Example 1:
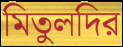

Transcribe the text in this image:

মিতুলদির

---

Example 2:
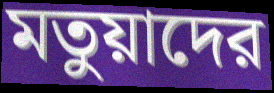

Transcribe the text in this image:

মতুয়াদের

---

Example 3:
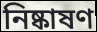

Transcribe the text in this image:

নিষ্কাষণ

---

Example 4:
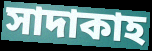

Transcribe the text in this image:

সাদাকাহ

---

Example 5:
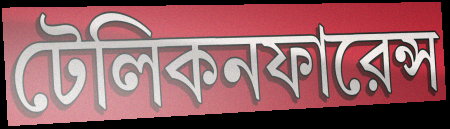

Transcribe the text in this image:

টেলিকনফারেন্স